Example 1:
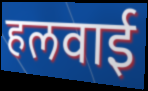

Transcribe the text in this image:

हलवाई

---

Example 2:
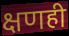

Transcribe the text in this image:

क्षणही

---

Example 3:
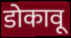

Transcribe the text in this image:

डोकावू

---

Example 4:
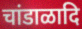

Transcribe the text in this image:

चांडाळादि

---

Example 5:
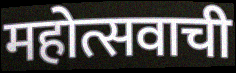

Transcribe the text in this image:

महोत्सवाची